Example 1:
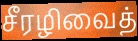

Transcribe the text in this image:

சீரழிவைத்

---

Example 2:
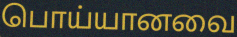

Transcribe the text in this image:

பொய்யானவை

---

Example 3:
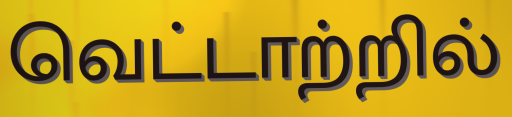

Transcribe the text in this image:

வெட்டாற்றில்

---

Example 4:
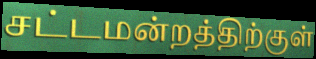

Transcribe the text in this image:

சட்டமன்றத்திற்குள்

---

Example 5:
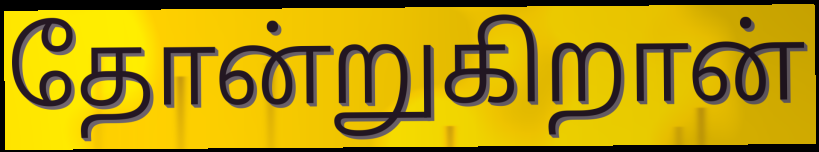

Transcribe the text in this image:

தோன்றுகிறான்